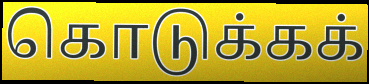
கொடுக்கக்